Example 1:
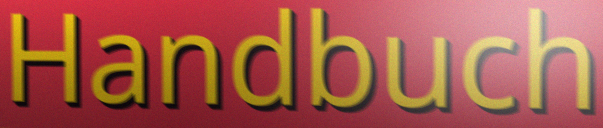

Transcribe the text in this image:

Handbuch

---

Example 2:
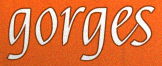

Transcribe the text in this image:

gorges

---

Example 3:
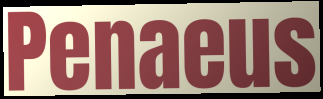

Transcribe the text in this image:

Penaeus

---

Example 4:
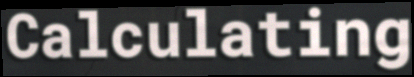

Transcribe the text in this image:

Calculating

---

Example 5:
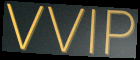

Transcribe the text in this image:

VVIP